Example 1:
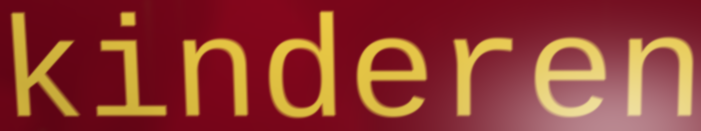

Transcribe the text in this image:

kinderen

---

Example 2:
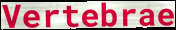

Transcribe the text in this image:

Vertebrae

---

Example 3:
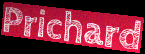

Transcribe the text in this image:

Prichard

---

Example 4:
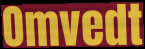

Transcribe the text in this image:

Omvedt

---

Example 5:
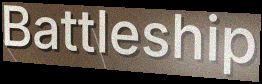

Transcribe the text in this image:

Battleship